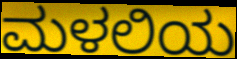
ಮಳಲಿಯ